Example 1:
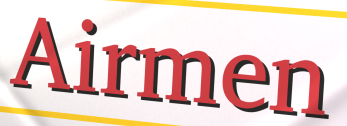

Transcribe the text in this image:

Airmen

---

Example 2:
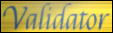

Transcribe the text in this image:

Validator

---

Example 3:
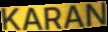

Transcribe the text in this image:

KARAN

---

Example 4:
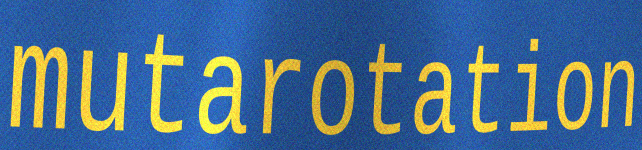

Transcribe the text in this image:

mutarotation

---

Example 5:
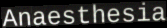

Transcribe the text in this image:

Anaesthesia